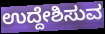
ಉದ್ದೇಶಿಸುವ